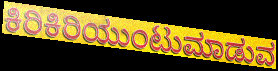
ಕಿರಿಕಿರಿಯುಂಟುಮಾಡುವ